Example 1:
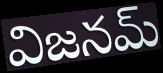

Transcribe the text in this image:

విజనమ్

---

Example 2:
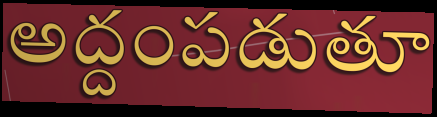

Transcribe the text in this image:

అద్దంపడుతూ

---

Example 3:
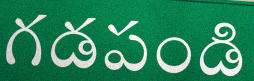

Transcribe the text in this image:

గడపండి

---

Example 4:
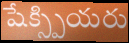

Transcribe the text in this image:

షేక్స్పియరు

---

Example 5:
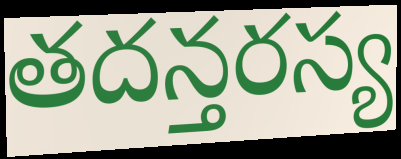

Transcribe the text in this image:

తదన్తరస్య